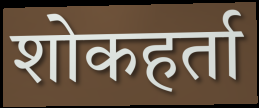
शोकहर्ता